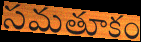
సమతూకం